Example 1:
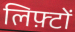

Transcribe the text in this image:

लिफ़्टों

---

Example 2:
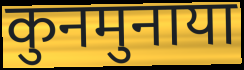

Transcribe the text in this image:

कुनमुनाया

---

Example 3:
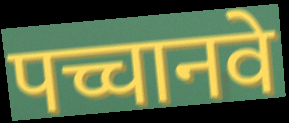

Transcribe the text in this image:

पच्चानवे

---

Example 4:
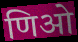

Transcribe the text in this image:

णिओ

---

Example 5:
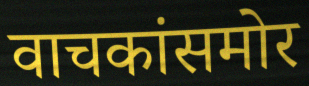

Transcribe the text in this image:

वाचकांसमोर